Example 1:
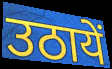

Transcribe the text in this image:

उठायें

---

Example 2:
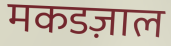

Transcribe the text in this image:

मकडज़ाल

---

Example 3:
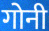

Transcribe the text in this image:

गोनी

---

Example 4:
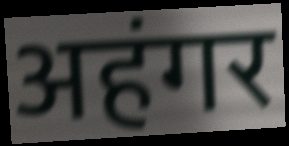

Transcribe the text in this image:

अहंगर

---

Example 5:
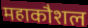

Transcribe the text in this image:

महाकौशल